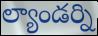
ల్యాండర్ని